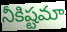
నీకిష్టమా